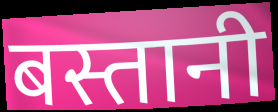
बस्तानी